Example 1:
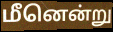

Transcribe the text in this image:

மீனென்று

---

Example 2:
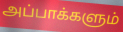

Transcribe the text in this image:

அப்பாக்களும்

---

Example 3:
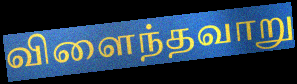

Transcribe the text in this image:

விளைந்தவாறு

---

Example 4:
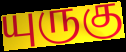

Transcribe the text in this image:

யுருகு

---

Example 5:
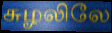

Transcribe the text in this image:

சுழலிலே